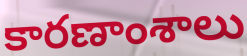
కారణాంశాలు